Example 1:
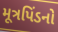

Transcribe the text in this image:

મૂત્રપિંડનો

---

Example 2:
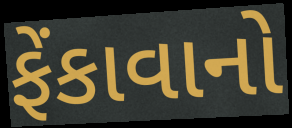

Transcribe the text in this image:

ફેંકાવાનો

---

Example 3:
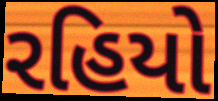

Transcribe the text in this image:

રહિયો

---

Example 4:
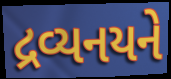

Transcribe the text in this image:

દ્રવ્યનયને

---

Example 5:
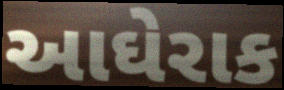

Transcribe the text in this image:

આઘેરાક